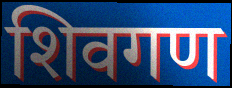
शिवगण